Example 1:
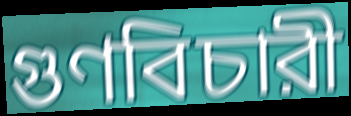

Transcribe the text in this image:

গুণবিচারী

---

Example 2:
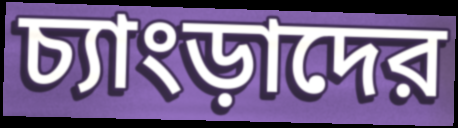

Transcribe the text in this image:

চ্যাংড়াদের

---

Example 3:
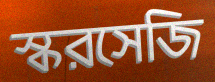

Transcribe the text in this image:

স্করসেজি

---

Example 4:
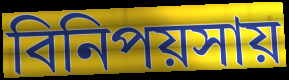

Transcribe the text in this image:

বিনিপয়সায়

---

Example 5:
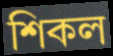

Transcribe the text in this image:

শিকল